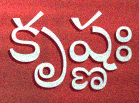
కృష్ణః